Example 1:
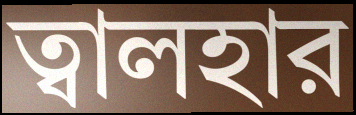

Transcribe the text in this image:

ত্বালহার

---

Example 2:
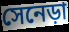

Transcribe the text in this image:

সেনেড়া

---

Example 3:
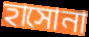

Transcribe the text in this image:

হাসোনা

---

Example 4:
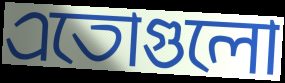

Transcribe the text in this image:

এতোগুলো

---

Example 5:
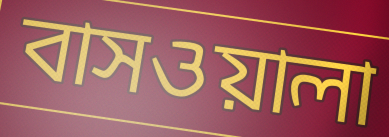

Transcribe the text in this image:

বাসওয়ালা